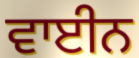
ਵਾਈਨ